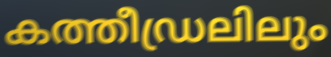
കത്തീഡ്രലിലും